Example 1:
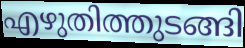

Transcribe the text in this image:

എഴുതിത്തുടങ്ങി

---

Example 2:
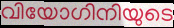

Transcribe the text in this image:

വിയോഗിനിയുടെ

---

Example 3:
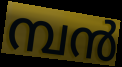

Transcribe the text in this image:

മ്പൻ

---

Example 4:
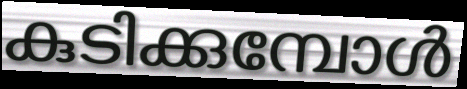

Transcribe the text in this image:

കുടിക്കുമ്പോൾ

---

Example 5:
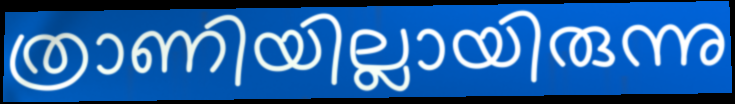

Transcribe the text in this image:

ത്രാണിയില്ലായിരുന്നു